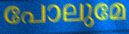
പോലുമേ